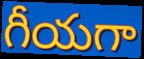
గీయగా